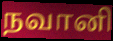
நவானி